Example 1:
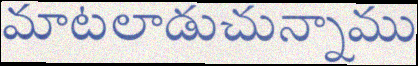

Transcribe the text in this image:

మాటలాడుచున్నాము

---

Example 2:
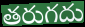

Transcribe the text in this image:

తరుగదు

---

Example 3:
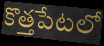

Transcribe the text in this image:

కొత్తపేటలో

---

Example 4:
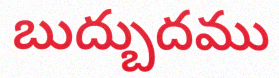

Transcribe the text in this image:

బుద్బుదము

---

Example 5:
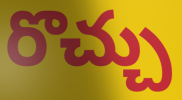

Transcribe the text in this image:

రొచ్చు